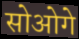
सोओगे